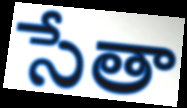
సేతా